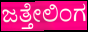
ಜತ್ತೇಲಿಂಗ